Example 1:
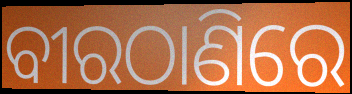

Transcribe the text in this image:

ବୀରଠାଣିରେ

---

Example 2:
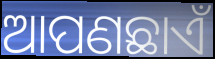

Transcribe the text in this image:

ଆପଣଛାଏଁ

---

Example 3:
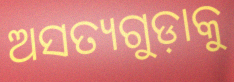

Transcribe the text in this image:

ଅସତ୍ୟଗୁଡ଼ାକୁ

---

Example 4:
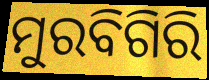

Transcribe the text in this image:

ମୁରବିଗିରି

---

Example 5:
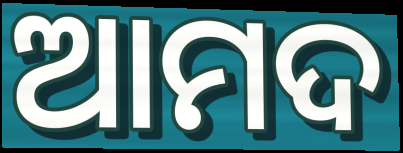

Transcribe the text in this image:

ଆମଦ